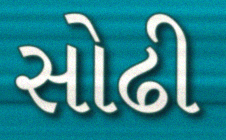
સોઢી